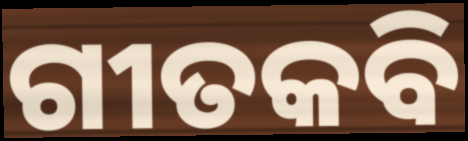
ଗୀତକବି